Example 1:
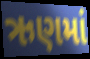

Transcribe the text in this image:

ઋણમાં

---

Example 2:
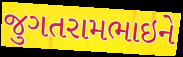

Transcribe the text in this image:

જુગતરામભાઇને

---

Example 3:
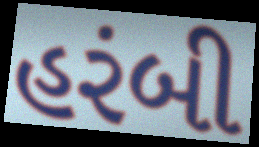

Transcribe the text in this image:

હરંબી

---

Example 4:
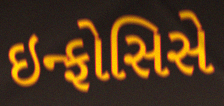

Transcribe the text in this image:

ઇન્ફોસિસે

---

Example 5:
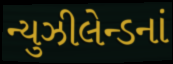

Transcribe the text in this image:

ન્યુઝીલેન્ડનાં